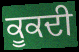
ਕੂਕਦੀ